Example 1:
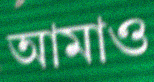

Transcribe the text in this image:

আমাও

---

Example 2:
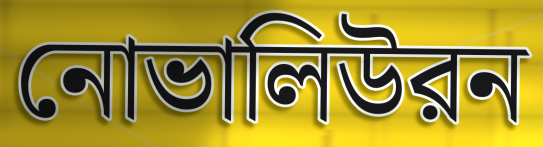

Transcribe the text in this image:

নোভালিউরন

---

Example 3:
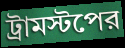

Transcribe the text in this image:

ট্রামস্টপের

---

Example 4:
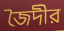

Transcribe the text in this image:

জৈদীর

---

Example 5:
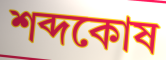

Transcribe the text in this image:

শব্দকোষ